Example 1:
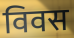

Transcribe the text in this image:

विवस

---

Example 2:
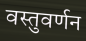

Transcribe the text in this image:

वस्तुवर्णन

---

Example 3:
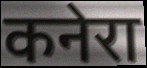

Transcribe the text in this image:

कनेरा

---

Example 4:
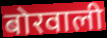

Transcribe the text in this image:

बोरवाली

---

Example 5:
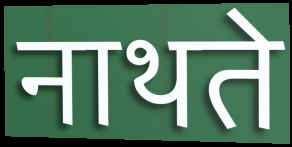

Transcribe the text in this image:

नाथते